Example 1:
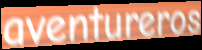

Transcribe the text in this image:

aventureros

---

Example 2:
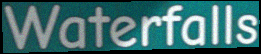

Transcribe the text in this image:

Waterfalls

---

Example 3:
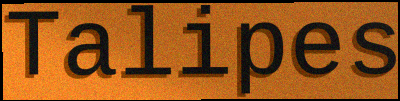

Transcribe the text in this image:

Talipes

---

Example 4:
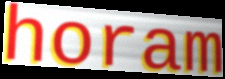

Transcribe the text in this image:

horam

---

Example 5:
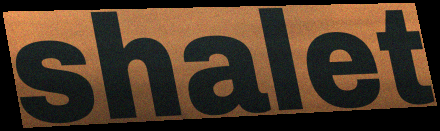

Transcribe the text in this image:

shalet